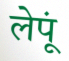
लेपूं